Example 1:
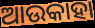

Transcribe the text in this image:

ଆଉକାହା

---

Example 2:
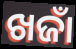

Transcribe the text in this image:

ଖଜାଁ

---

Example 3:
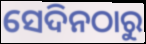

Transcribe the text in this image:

ସେଦିନଠାରୁ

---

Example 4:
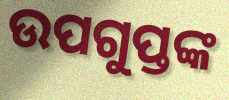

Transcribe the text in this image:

ଉପଗୁପ୍ତଙ୍କ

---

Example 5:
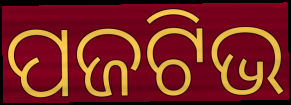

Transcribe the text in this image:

ପଜଟିଭ